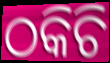
ଠକିଚି